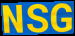
NSG